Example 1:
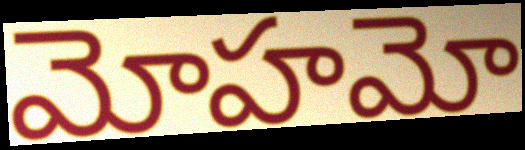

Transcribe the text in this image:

మోహమో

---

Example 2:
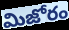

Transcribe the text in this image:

మిజోరం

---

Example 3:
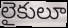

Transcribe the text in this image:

లైకులూ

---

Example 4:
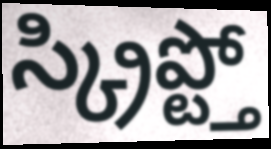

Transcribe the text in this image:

స్క్రిప్ట్తో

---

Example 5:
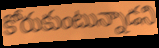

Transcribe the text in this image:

కోరుకుంటున్నాడని